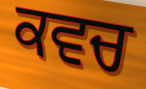
ਕਵਚ